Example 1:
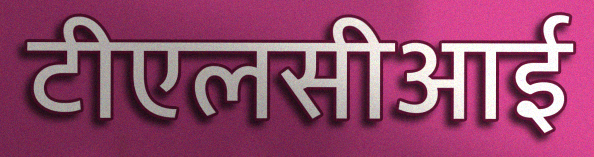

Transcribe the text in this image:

टीएलसीआई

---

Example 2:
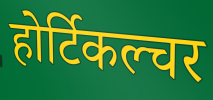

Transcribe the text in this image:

होर्टिकल्चर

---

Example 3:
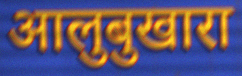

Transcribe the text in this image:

आलुबुखारा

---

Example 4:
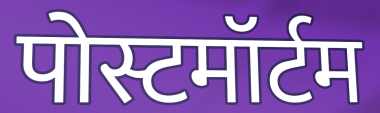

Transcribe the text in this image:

पोस्टमॉर्टम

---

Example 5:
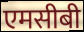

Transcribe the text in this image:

एमसीबी